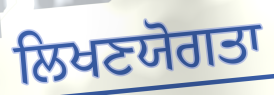
ਲਿਖਣਯੋਗਤਾ